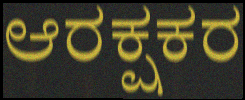
ಆರಕ್ಷಕರ